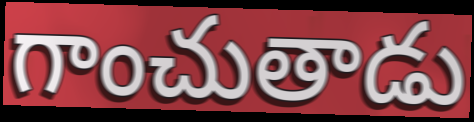
గాంచుతాడు